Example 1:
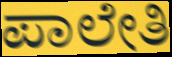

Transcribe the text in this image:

ಪಾಲೇತಿ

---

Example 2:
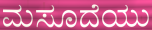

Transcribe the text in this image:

ಮಸೂದೆಯು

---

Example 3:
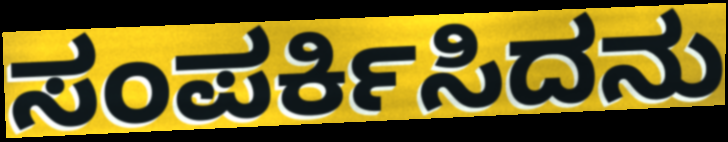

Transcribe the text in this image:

ಸಂಪರ್ಕಿಸಿದನು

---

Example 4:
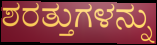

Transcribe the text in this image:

ಶರತ್ತುಗಳನ್ನು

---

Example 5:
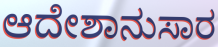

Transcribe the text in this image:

ಆದೇಶಾನುಸಾರ